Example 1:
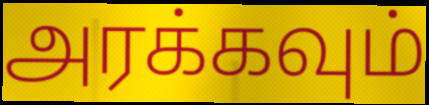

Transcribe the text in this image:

அரக்கவும்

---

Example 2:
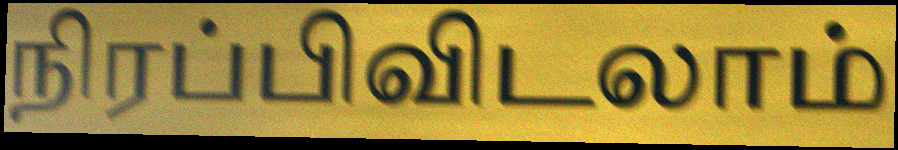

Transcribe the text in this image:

நிரப்பிவிடலாம்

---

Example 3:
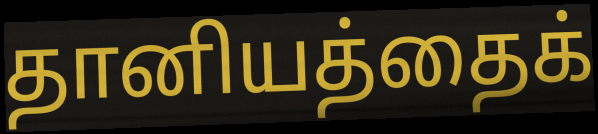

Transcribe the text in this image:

தானியத்தைக்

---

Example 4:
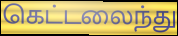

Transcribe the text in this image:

கெட்டலைந்து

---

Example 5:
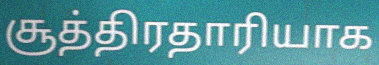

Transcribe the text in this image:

சூத்திரதாரியாக